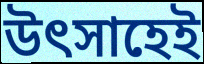
উৎসাহেই